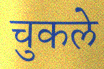
चुकले